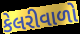
કેલરીવાળો